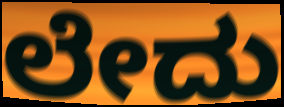
ಲೇದು